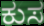
ಕುಸ